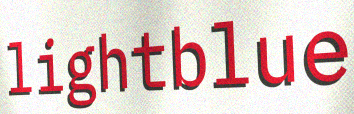
lightblue